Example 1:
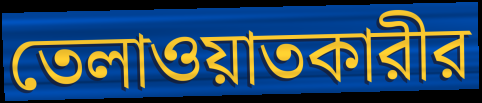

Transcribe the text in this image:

তেলাওয়াতকারীর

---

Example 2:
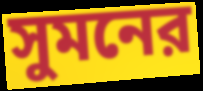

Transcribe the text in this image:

সুমনের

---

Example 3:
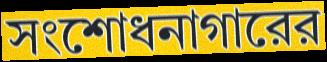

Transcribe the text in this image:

সংশোধনাগারের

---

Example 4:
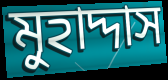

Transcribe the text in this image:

মুহাদ্দাস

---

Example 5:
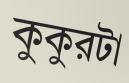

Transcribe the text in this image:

কুকুরটা